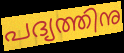
പദ്യത്തിനു